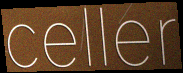
celler